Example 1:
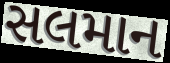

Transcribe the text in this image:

સલમાન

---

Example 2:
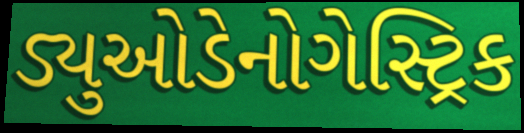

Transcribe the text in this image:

ડ્યુઓડેનોગેસ્ટ્રિક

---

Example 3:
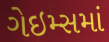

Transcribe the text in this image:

ગેઇમ્સમાં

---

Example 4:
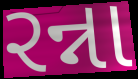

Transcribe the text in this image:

રન્ના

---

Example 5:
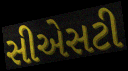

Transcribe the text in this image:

સીએસટી